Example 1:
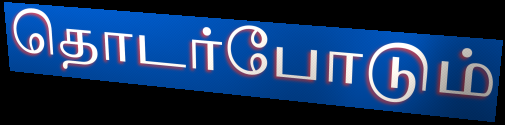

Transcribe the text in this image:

தொடர்போடும்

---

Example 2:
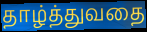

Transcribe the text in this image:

தாழ்த்துவதை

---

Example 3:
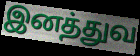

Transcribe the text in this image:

இனத்துவ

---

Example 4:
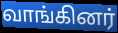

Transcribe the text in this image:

வாங்கினர்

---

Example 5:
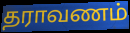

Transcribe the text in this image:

தராவணம்